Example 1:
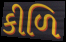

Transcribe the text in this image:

કીળિ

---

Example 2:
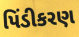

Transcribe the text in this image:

પિંડીકરણ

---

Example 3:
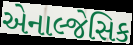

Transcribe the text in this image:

એનાલ્જેસિક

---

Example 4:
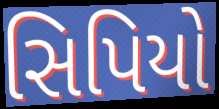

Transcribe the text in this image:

સિપિયો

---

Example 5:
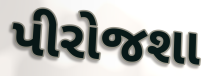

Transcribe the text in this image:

પીરોજશા